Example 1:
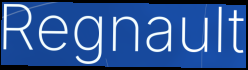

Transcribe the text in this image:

Regnault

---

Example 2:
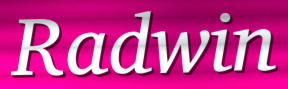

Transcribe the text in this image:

Radwin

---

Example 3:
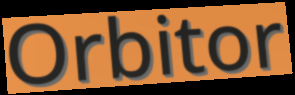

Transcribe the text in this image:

Orbitor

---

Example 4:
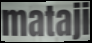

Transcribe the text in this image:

mataji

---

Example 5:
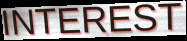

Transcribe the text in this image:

INTEREST